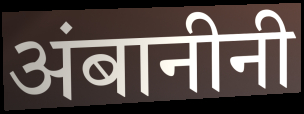
अंबानीनी